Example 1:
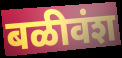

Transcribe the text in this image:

बळीवंश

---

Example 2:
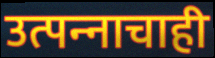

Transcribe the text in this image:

उत्पन्नाचाही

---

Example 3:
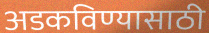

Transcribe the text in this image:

अडकविण्यासाठी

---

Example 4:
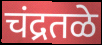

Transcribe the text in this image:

चंद्रतळे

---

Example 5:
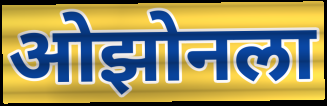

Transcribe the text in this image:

ओझोनला